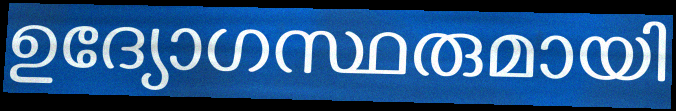
ഉദ്യോഗസ്ഥരുമായി